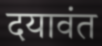
दयावंत